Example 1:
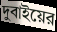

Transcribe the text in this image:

দুবাইয়ের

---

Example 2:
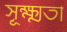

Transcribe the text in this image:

সূক্ষ্মতা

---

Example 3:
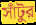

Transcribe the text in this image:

সাঁটুর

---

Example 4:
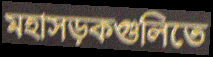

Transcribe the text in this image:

মহাসড়কগুলিতে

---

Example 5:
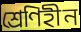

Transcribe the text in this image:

শ্রেণিহীন